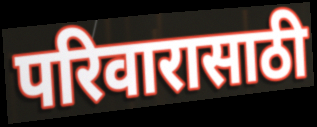
परिवारासाठी